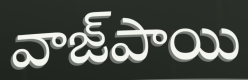
వాజ్‌పాయి